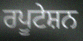
ਰਪੂਟੇਸ਼ਨ